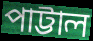
পাট্টাল